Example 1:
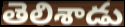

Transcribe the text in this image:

తెలిశాడు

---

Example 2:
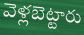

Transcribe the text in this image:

వెళ్లబెట్టారు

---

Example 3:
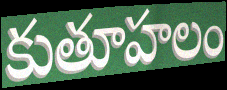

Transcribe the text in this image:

కుతూహలం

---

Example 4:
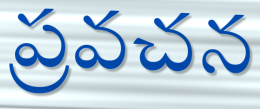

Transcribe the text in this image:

ప్రవచన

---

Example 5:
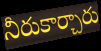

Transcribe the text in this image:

నీరుకార్చారు